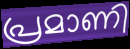
പ്രമാണി